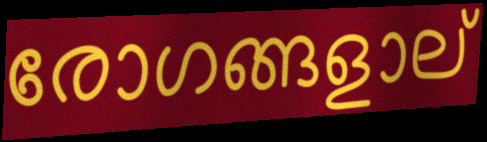
രോഗങ്ങളാല്